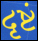
દૃષ્ટં